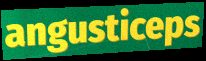
angusticeps